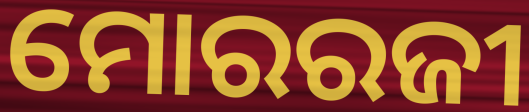
ମୋରରଜୀ